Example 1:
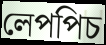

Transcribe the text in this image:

লেপপিচ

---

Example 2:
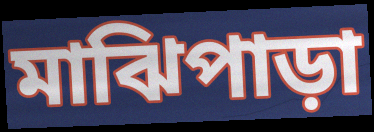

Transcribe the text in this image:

মাঝিপাড়া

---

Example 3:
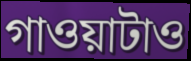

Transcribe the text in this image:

গাওয়াটাও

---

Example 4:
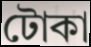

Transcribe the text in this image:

টোকা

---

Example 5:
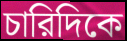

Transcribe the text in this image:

চারিদিকে